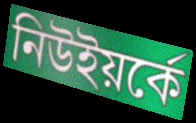
নিউইয়র্কে